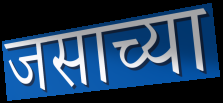
जसाच्या